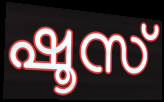
ഷൂസ്